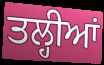
ਤਲ੍ਹੀਆਂ